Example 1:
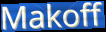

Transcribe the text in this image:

Makoff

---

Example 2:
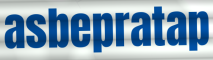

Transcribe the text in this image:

asbepratap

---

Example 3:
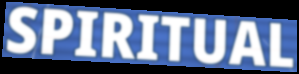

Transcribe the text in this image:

SPIRITUAL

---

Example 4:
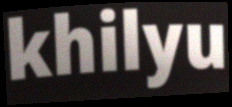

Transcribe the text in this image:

khilyu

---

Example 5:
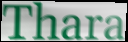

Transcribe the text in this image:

Thara